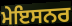
ਮੇਇਸਨਰ